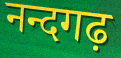
नन्दगढ़